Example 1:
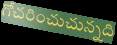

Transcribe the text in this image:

గోచరించుచున్నది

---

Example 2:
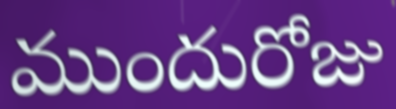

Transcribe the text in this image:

ముందురోజు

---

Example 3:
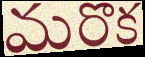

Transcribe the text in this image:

మరొక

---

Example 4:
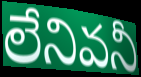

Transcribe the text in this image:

లేనివనీ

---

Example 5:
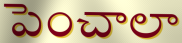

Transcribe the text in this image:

పెంచాలా